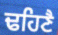
ਢਹਿਣੈ